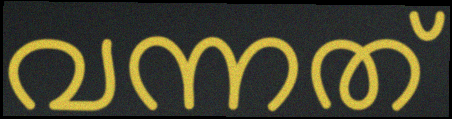
വന്നത്